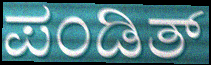
ಪಂಡಿತ್